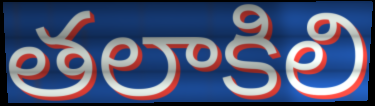
తలాకిలి